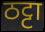
ठट्टा